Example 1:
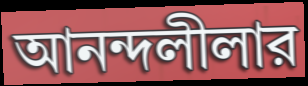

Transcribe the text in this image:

আনন্দলীলার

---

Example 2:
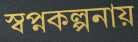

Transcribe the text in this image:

স্বপ্নকল্পনায়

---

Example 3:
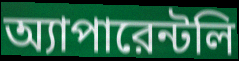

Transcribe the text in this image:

অ্যাপারেন্টলি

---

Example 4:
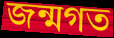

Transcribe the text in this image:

জন্মগত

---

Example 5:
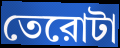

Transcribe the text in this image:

তেরোটা